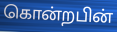
கொன்றபின்